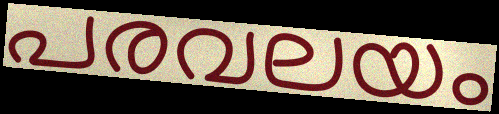
പരവലയം